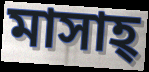
মাসাহ্